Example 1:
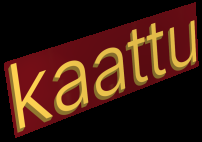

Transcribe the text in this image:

kaattu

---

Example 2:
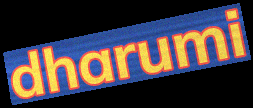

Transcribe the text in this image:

dharumi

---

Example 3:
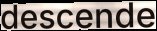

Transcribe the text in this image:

descende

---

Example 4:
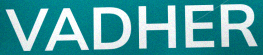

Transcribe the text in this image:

VADHER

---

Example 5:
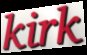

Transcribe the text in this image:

kirk